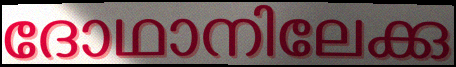
ദോഥാനിലേക്കു